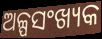
ଅଳ୍ପସଂଖ୍ୟକ